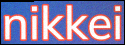
nikkei